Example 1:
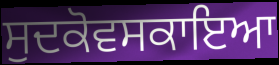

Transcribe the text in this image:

ਸੁਦਕੋਵਸਕਾਇਆ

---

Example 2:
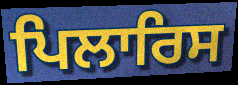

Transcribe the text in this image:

ਪਿਲਾਰਿਸ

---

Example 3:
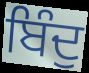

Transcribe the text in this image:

ਬਿੰਦੁ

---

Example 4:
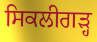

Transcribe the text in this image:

ਸਿਕਲੀਗੜ੍ਹ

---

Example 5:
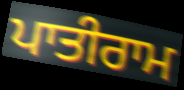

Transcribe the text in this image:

ਪਾਤੀਰਾਮ